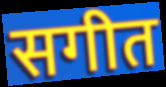
सगीत